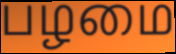
பழமை